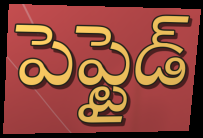
పెప్టైడ్